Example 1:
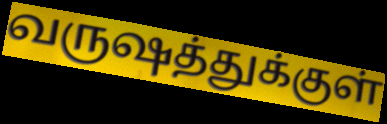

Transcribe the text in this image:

வருஷத்துக்குள்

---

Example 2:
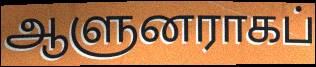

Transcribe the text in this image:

ஆளுனராகப்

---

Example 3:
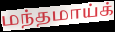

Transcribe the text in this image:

மந்தமாய்க்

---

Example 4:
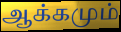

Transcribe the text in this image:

ஆக்கமும்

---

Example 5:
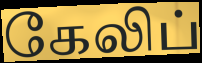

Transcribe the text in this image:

கேலிப்